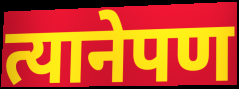
त्यानेपण